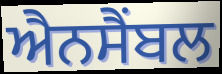
ਐਨਸੈਂਬਲ